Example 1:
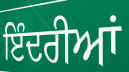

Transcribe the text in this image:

ਇੰਦਰੀਆਂ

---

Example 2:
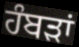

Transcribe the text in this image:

ਹੰਬੜਾਂ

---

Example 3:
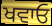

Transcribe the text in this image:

ਖਵਾਓ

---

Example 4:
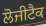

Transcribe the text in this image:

ਲੋਜੀਟੈਕ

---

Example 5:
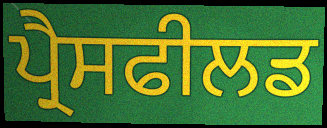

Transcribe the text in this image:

ਪ੍ਰੈਸਫੀਲਡ